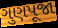
ગુણપૂજા